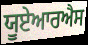
ਯੂਏਆਰਐਸ